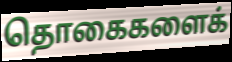
தொகைகளைக்